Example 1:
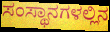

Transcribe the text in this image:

ಸಂಸ್ಥಾನಗಳಲ್ಲಿನ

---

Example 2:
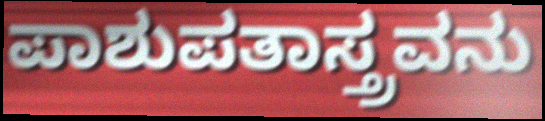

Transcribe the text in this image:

ಪಾಶುಪತಾಸ್ತ್ರವನು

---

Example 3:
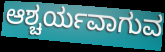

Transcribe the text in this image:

ಆಶ್ಚರ್ಯವಾಗುವ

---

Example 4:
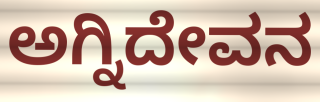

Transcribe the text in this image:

ಅಗ್ನಿದೇವನ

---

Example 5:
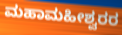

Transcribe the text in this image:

ಮಹಾಮಹೀಶ್ವರರ